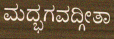
ಮದ್ಭಗವದ್ಗೀತಾ